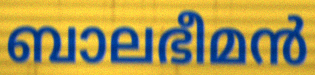
ബാലഭീമൻ